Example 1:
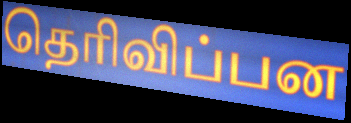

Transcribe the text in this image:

தெரிவிப்பன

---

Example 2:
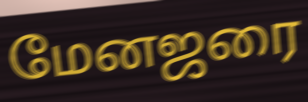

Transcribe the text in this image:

மேனஜரை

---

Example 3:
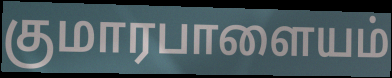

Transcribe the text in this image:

குமாரபாளையம்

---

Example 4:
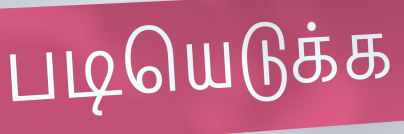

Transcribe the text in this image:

படியெடுக்க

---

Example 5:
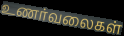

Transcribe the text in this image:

உணர்வலைகள்